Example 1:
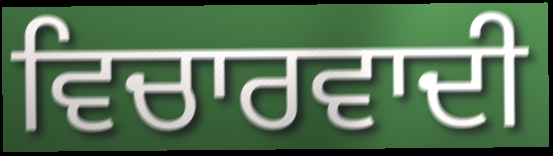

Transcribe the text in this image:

ਵਿਚਾਰਵਾਦੀ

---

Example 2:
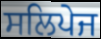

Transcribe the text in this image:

ਸਲਿਪੇਜ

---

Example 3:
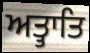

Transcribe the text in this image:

ਅਤ੍ਤਾਤਿ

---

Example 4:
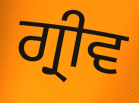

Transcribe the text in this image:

ਗ੍ਰੀਵ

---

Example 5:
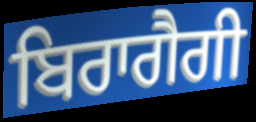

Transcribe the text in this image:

ਬਿਰਾਗੈਗੀ